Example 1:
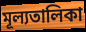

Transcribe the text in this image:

মূল্যতালিকা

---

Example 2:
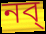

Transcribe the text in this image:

নব্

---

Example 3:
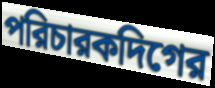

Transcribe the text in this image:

পরিচারকদিগের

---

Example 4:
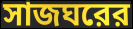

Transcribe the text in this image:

সাজঘরের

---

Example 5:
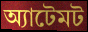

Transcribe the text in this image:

অ্যাটেমট